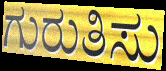
ಗುರುತಿಸು